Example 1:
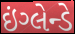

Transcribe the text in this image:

ઇંગ્લેન્ડે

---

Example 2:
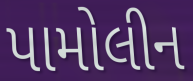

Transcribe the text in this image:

પામોલીન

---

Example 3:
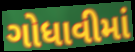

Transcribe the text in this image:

ગોધાવીમાં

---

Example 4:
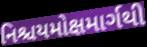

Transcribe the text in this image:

નિશ્ચયમોક્ષમાર્ગથી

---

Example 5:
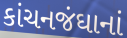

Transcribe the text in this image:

કાંચનજંઘાનાં